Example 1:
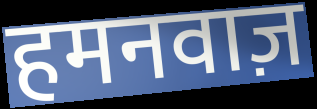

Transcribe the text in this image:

हमनवाज़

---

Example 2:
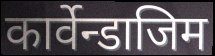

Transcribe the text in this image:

कार्वेन्डाजिम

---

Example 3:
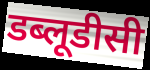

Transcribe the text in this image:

डब्लूडीसी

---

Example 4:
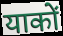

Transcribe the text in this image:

याकों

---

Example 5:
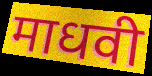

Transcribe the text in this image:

माधवी